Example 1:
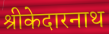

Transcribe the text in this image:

श्रीकेदारनाथ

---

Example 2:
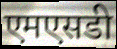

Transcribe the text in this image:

एमएसडी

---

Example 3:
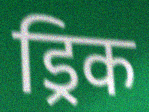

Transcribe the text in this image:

ड्रिक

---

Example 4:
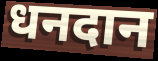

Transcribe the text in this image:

धनदान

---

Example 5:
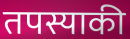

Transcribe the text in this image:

तपस्याकी